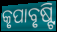
କୃପାବୃଷ୍ଟି